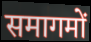
समागमों